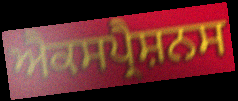
ਐਕਸਪ੍ਰੈਸ਼ਨਸ